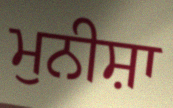
ਮੁਨੀਸ਼ਾ